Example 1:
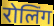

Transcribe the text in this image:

रोलिंग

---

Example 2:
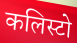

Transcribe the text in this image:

कलिस्टो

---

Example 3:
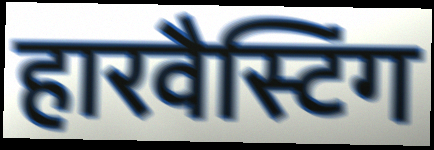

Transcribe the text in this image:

हारवैस्टिंग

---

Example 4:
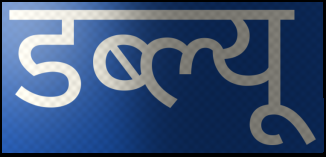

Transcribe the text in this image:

डब्ल्यू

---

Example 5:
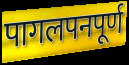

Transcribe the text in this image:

पागलपनपूर्ण